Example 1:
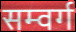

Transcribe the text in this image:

सम्वर्ग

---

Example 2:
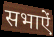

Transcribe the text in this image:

सभाऐं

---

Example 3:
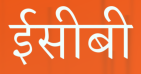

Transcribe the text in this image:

ईसीबी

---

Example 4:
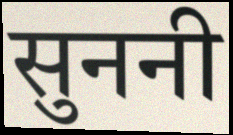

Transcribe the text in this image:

सुननी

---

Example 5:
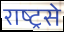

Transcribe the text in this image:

राष्ट्रसे